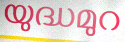
യുദ്ധമുറ